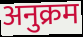
अनुक्रम